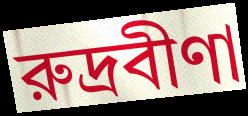
রুদ্রবীণা